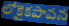
లోకైకపావన